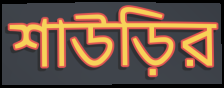
শাউড়ির